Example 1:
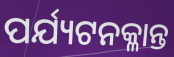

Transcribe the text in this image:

ପର୍ଯ୍ୟଟନକ୍ଳାନ୍ତ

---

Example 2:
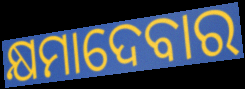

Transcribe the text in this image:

କ୍ଷମାଦେବାର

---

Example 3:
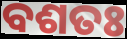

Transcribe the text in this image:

ବଶତଃ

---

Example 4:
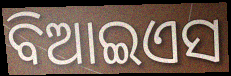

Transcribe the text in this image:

ବିଆଇଏସ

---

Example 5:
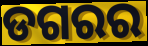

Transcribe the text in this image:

ଡଗରର